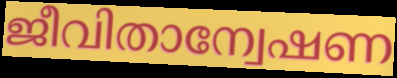
ജീവിതാന്വേഷണ